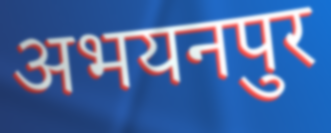
अभयनपुर